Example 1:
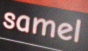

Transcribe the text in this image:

samel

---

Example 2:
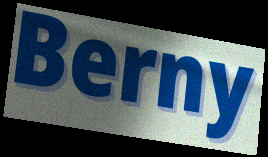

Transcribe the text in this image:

Berny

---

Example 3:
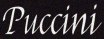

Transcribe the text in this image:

Puccini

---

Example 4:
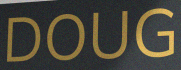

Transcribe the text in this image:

DOUG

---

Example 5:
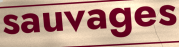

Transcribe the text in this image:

sauvages